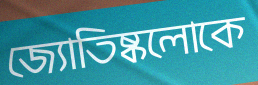
জ্যোতিষ্কলোকে